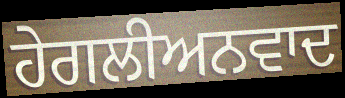
ਹੇਗਲੀਅਨਵਾਦ